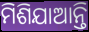
ମିଶିଯାଆନ୍ତି